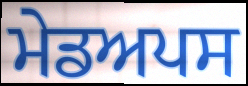
ਮੇਡਅਪਸ